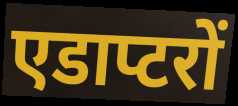
एडाप्टरों